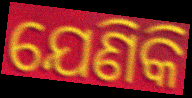
ଯେଣିକି